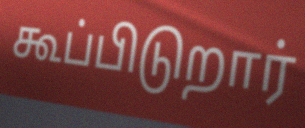
கூப்பிடுறார்